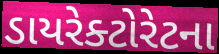
ડાયરેક્ટોરેટના